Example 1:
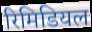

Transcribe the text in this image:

रिमिडियल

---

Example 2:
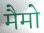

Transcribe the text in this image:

मैमो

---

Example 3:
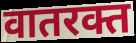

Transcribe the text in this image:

वातरक्त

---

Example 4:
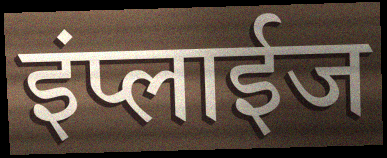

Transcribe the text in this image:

इंप्लाईज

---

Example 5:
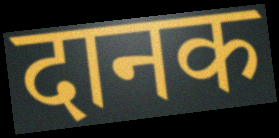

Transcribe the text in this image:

दानक